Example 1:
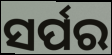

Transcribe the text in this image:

ସର୍ପର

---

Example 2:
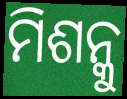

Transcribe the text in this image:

ମିଶନ୍କୁ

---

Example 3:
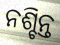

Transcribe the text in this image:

ନଶ୍ଚିନ୍ତ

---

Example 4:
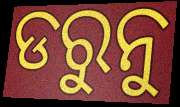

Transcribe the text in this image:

ଡରୁନୁ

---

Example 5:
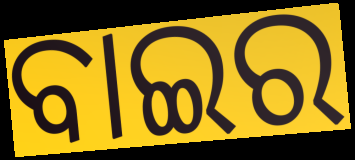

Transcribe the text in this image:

ବାଇର